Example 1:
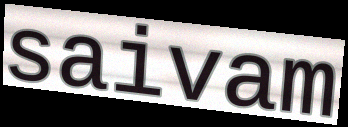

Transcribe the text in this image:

saivam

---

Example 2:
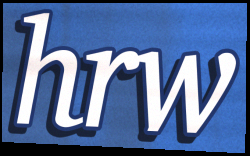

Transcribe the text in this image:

hrw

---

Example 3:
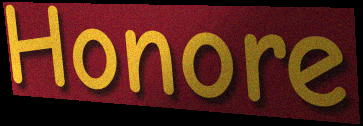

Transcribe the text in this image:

Honore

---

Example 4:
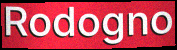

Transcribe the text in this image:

Rodogno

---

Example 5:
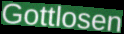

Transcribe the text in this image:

Gottlosen